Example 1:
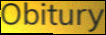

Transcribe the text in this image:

Obitury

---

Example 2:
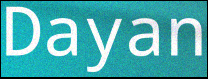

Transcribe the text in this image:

Dayan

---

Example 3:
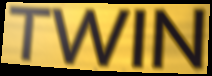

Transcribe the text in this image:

TWIN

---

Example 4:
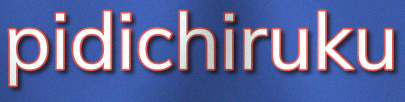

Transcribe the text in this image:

pidichiruku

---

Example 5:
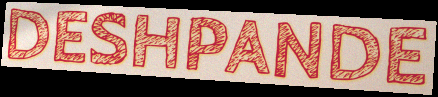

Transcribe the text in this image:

DESHPANDE